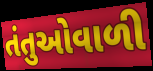
તંતુઓવાળી